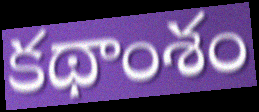
కథాంశం